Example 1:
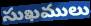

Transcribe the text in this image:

సుఖములు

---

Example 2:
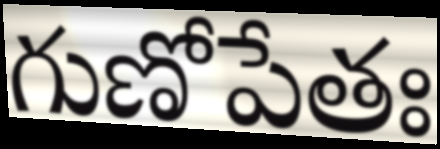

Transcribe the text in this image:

గుణోపేతః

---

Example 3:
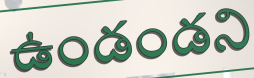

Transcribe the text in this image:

ఉండండని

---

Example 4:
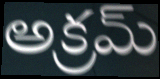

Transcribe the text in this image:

అక్రమ్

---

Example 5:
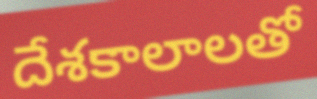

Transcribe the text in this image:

దేశకాలాలతో